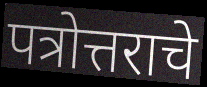
पत्रोत्तराचे